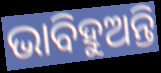
ଭାବିହୁଅନ୍ତି